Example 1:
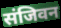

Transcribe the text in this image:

संजिवन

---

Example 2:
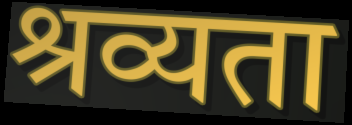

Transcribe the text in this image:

श्रव्यता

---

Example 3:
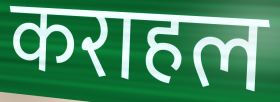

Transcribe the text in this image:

कराहल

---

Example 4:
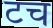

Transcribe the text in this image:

टच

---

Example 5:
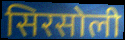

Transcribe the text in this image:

सिरसोली